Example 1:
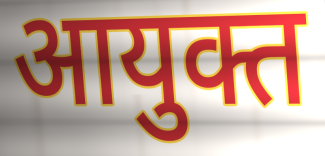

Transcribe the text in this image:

आयुक्त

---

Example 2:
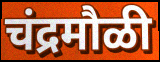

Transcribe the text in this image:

चंद्रमौळी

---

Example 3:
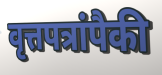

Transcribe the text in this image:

वृत्तपत्रांपैकी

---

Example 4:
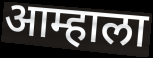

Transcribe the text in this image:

आम्हाला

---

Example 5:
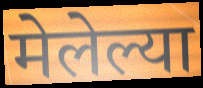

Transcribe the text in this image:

मेलेल्या